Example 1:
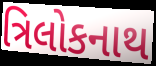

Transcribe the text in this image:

ત્રિલોકનાથ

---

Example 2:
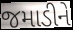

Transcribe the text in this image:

જમાડીને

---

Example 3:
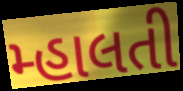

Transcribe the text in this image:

મ્હાલતી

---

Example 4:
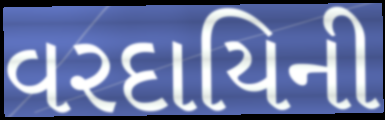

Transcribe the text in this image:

વરદાયિની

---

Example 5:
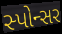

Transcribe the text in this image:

સ્પોન્સર